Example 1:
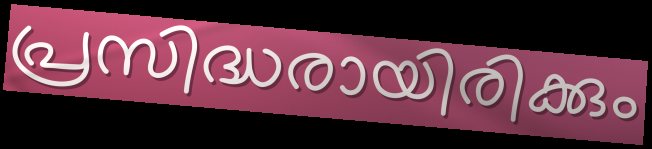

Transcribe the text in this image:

പ്രസിദ്ധരായിരിക്കും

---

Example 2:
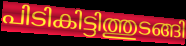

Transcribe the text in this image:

പിടികിട്ടിത്തുടങ്ങി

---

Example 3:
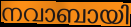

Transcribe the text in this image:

നവാബായി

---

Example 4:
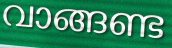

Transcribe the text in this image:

വാങ്ങണ്ട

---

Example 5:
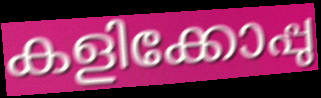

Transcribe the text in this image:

കളിക്കോപ്പു